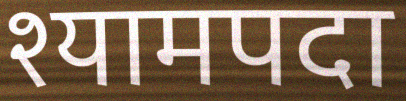
श्यामपदा